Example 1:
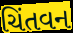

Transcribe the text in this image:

ચિંતવન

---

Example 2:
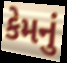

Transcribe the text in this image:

કેમનું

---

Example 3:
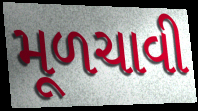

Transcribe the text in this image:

મૂળચાવી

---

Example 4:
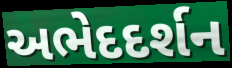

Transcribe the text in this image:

અભેદદર્શન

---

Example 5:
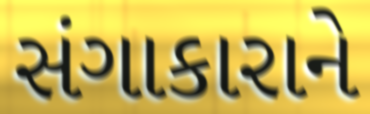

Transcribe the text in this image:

સંગાકારાને